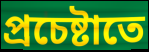
প্রচেষ্টাতে